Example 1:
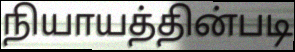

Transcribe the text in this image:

நியாயத்தின்படி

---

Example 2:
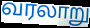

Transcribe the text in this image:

வரலாறு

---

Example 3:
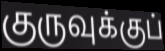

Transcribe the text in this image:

குருவுக்குப்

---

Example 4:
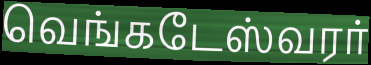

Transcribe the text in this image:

வெங்கடேஸ்வரர்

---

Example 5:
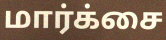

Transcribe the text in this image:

மார்க்சை